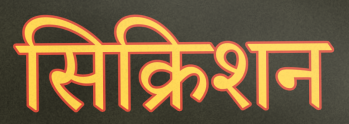
सिक्रिशन